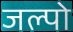
जल्पो